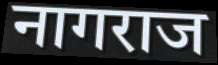
नागराज